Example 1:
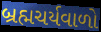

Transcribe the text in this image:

બ્રહ્મચર્યવાળો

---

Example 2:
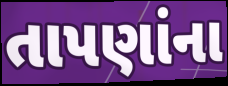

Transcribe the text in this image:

તાપણાંના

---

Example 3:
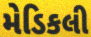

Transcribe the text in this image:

મેડિકલી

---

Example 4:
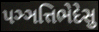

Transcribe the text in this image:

પઞ્ઞત્તિભેદેસુ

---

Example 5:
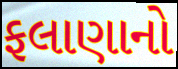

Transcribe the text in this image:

ફલાણાનો